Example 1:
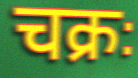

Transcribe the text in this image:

चक्रः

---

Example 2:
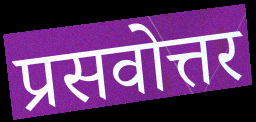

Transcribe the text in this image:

प्रसवोत्तर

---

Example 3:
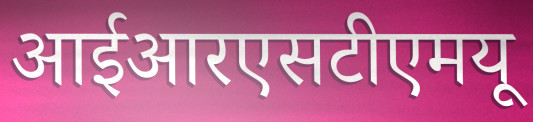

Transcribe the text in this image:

आईआरएसटीएमयू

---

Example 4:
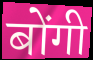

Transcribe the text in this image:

बोंगी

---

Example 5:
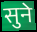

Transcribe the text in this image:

सुने